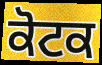
ਕੋਟਕ